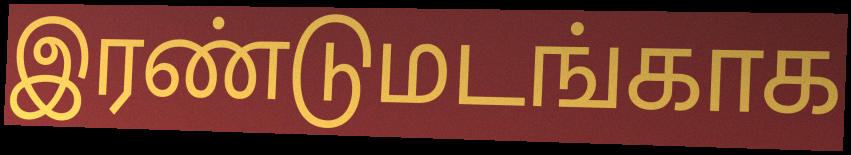
இரண்டுமடங்காக